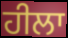
ਹੀਲਾ